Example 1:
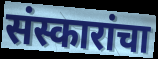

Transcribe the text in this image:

संस्कारांचा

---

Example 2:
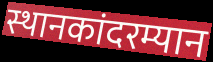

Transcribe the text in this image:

स्थानकांदरम्यान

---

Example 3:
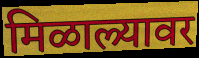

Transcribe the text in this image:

मिळाल्यावर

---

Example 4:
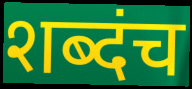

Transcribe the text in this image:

शब्दंच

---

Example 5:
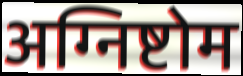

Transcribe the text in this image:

अग्निष्टोम